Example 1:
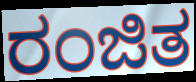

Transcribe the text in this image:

ರಂಜಿತ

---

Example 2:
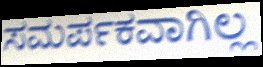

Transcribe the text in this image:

ಸಮರ್ಪಕವಾಗಿಲ್ಲ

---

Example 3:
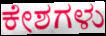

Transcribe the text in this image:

ಕೇಶಗಳು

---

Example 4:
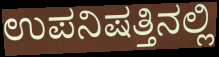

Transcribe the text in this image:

ಉಪನಿಷತ್ತಿನಲ್ಲಿ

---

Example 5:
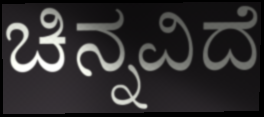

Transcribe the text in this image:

ಚಿನ್ನವಿದೆ